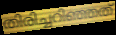
തിരിച്ചറിഞ്ഞത്